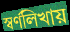
স্বর্ণলিখায়